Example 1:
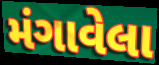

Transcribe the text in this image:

મંગાવેલા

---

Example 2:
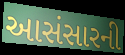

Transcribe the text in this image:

આસંસારની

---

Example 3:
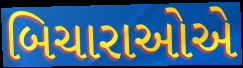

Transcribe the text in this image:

બિચારાઓએ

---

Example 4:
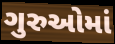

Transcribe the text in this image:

ગુરુઓમાં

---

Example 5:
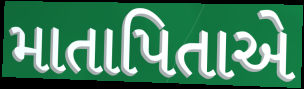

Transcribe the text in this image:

માતાપિતાએ